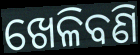
ଖେଳିବଣି